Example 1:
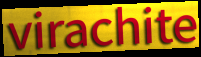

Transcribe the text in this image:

virachite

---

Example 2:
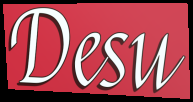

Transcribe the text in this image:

Desu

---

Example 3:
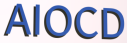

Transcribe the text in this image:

AIOCD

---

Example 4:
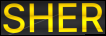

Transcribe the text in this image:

SHER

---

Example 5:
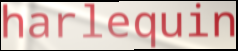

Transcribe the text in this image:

harlequin